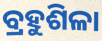
ବ୍ରହୁଶିଳା